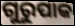
ଗୁରୁପାକ